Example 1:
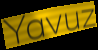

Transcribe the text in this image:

Yavuz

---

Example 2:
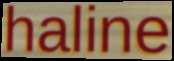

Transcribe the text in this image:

haline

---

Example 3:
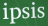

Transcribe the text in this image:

ipsis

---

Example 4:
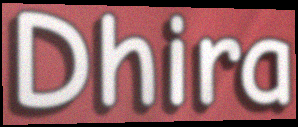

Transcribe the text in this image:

Dhira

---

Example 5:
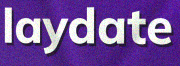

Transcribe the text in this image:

laydate